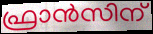
ഫ്രാൻസിന്